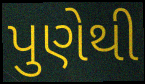
પુણેથી